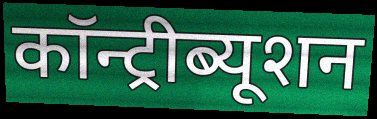
कॉन्ट्रीब्यूशन